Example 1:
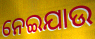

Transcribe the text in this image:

ନେଇଯାଉ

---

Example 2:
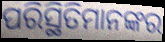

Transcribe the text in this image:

ପରିସ୍ଥିତିମାନଙ୍କର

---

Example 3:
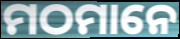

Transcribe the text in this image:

ମଠମାନେ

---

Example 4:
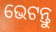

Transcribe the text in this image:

ଭେଟନ୍ତୁ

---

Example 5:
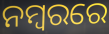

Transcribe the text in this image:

ନମ୍ବରରେ